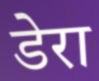
डेरा